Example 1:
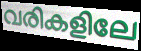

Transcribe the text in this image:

വരികളിലേ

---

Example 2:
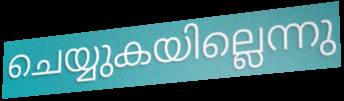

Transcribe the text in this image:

ചെയ്യുകയില്ലെന്നു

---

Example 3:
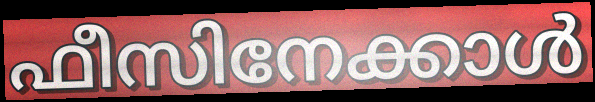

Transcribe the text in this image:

ഫീസിനേക്കാൾ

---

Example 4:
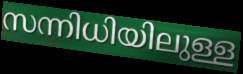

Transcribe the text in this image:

സന്നിധിയിലുള്ള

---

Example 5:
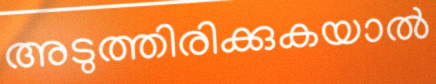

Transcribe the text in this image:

അടുത്തിരിക്കുകയാൽ